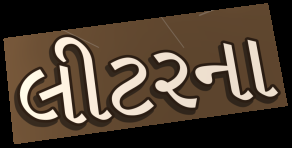
લીટરના